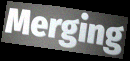
Merging